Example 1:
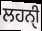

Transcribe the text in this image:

ਲਹਨੑੀ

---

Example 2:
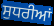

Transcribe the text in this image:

ਸੁਧਰੀਆਂ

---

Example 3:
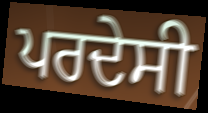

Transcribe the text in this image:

ਪਰਦੇਸੀ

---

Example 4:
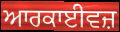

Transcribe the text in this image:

ਆਰਕਾਈਵਜ਼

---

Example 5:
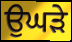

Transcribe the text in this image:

ਉਘੜੇ